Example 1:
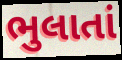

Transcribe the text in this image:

ભુલાતાં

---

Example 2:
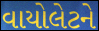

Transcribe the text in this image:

વાયોલેટને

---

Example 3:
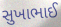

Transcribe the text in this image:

સુખાભાઈ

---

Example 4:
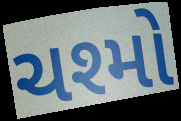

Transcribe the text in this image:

ચશ્મો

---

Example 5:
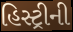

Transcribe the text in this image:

હિસ્ટ્રીની